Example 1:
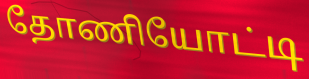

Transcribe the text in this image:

தோணியோட்டி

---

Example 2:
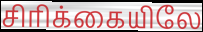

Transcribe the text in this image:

சிரிக்கையிலே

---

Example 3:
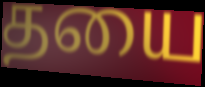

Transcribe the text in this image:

தயை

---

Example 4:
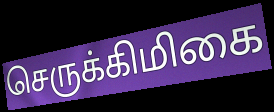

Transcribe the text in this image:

செருக்கிமிகை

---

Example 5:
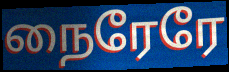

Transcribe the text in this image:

நைரேரே